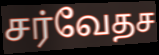
சர்வேதச